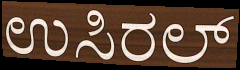
ಉಸಿರಲ್